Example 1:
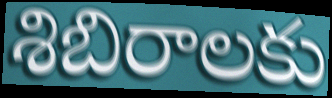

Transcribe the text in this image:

శిబిరాలకు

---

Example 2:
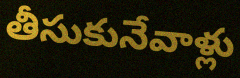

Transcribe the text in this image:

తీసుకునేవాళ్లు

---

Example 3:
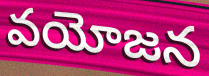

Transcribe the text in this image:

వయోజన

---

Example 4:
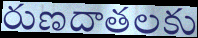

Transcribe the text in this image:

రుణదాతలకు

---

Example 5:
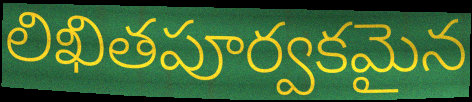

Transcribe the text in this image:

లిఖితపూర్వకమైన